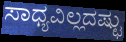
ಸಾಧ್ಯವಿಲ್ಲದಷ್ಟು